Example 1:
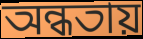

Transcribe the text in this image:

অন্ধতায়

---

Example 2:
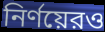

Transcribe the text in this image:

নির্ণয়েরও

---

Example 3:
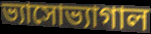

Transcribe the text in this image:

ভ্যাসোভ্যাগাল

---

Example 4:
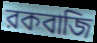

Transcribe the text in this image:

রকবাজি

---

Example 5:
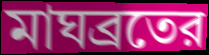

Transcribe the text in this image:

মাঘব্রতের